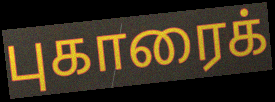
புகாரைக்